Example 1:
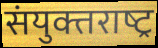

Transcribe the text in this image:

संयुक्तराष्ट्र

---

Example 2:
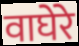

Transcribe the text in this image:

वाघेरे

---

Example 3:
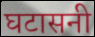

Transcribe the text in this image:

घटासनी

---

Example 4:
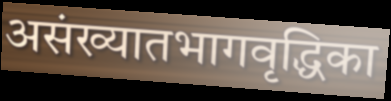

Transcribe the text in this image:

असंख्यातभागवृद्धिका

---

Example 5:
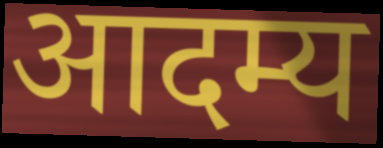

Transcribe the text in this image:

आदम्य